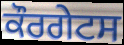
ਕੌਰਗੇਟਸ